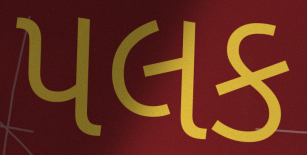
પલક